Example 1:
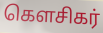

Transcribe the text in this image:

கௌசிகர்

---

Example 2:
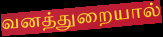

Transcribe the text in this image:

வனத்துறையால்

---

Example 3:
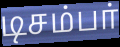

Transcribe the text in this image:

டிசம்பர்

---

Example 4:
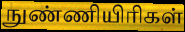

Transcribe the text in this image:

நுண்ணியிரிகள்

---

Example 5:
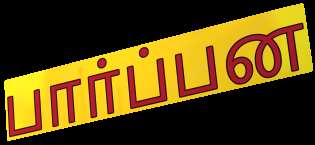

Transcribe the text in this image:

பார்ப்பன